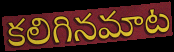
కలిగినమాట